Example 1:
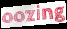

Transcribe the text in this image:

oozing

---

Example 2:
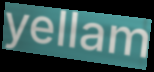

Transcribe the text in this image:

yellam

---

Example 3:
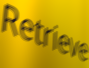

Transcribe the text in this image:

Retrieve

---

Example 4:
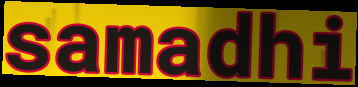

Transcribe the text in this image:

samadhi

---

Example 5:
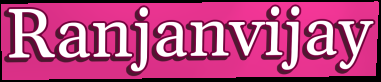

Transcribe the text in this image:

Ranjanvijay